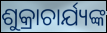
ଶୁକ୍ରାଚାର୍ଯ୍ୟଙ୍କ